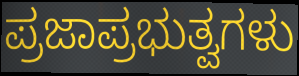
ಪ್ರಜಾಪ್ರಭುತ್ವಗಳು